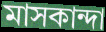
মাসকান্দা